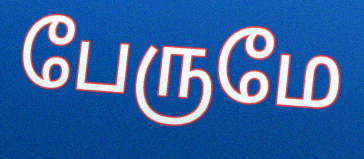
பேருமே